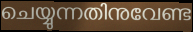
ചെയ്യുന്നതിനുവേണ്ട